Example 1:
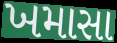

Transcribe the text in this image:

ખમાસા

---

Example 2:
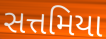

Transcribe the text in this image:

સત્તમિયા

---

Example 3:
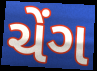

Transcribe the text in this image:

ચેંગ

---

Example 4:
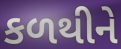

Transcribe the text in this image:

કળથીને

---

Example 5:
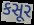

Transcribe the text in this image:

કસૂર